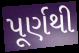
પૂર્ણથી